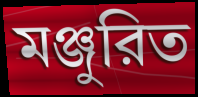
মঞ্জুরিত